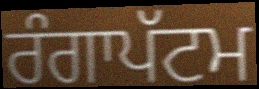
ਰੰਗਾਪੱਟਮ